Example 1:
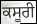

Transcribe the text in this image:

ਕਸੂਰੀ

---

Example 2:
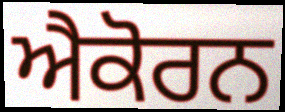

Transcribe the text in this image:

ਐਕੋਰਨ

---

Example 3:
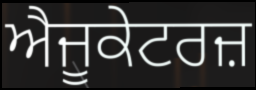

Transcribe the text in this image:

ਐਜੂਕੇਟਰਜ਼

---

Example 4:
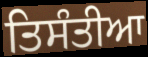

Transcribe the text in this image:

ਤਿਸੰਤੀਆ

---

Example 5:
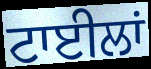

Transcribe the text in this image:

ਟਾਈਲਾਂ